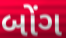
બોંગ